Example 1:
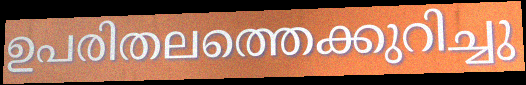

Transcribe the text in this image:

ഉപരിതലത്തെക്കുറിച്ചു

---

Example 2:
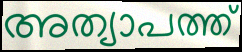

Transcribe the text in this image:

അത്യാപത്ത്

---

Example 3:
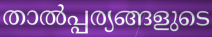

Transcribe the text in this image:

താൽപ്പര്യങ്ങളുടെ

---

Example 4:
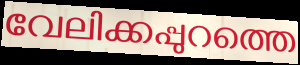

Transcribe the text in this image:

വേലിക്കപ്പുറത്തെ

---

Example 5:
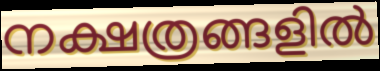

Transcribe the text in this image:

നക്ഷത്രങ്ങളിൽ